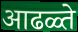
आढळ्ते